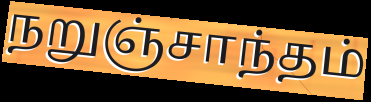
நறுஞ்சாந்தம்